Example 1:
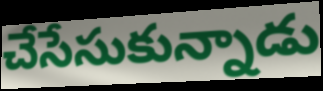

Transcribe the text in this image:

చేసేసుకున్నాడు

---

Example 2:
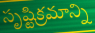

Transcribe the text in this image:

సృష్టిక్రమాన్ని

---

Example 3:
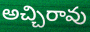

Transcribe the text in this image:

అచ్చిరావు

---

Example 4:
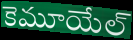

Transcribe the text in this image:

కెమూయేల్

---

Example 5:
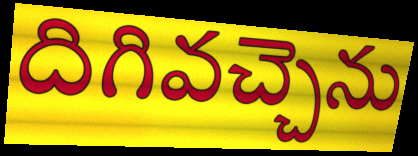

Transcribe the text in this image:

దిగివచ్చెను